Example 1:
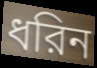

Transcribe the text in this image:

ধরিন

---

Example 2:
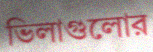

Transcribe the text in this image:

ভিলাগুলোর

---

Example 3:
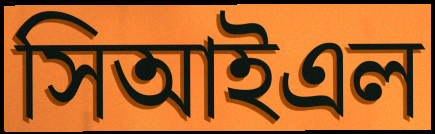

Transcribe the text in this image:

সিআইএল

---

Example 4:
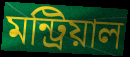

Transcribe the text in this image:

মন্ট্রিয়াল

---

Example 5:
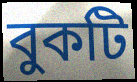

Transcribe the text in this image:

বুকটি